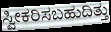
ಸ್ವೀಕರಿಸಬಹುದಿತ್ತು